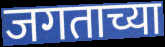
जगताच्या